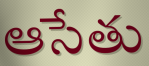
ఆసేతు